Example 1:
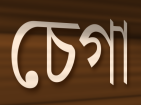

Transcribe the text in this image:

চেগা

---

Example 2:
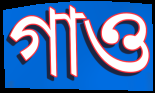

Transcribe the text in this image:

গাও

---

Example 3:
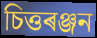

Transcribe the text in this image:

চিত্তৰঞ্জন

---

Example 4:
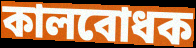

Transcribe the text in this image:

কালবোধক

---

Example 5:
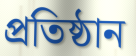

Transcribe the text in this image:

প্ৰতিষ্ঠান